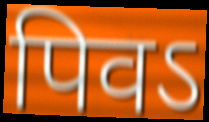
पिवऽ